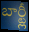
బార్ట్లీ